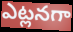
ఎట్లనగా